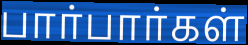
பார்பார்கள்